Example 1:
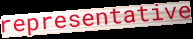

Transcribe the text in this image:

representative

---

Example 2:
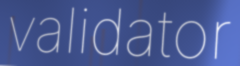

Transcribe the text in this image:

validator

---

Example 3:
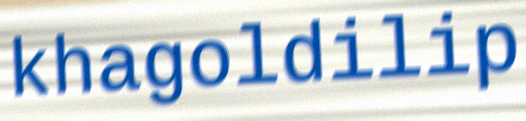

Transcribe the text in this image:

khagoldilip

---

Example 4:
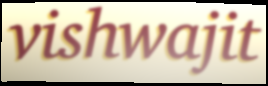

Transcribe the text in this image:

vishwajit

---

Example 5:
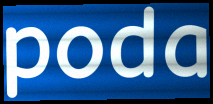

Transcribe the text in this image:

poda